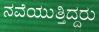
ನವೆಯುತ್ತಿದ್ದರು